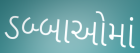
ડબ્બાઓમાં